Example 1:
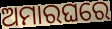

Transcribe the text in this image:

ଅମାରଘରେ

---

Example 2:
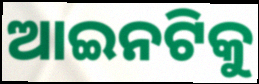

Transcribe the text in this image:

ଆଇନଟିକୁ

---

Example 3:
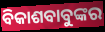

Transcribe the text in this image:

ବିକାଶବାବୁଙ୍କର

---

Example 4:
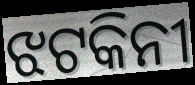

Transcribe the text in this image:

ଝଟକିନୀ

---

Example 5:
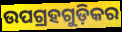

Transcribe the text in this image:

ଉପଗ୍ରହଗୁଡ଼ିକର